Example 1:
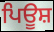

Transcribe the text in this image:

ਪਿਊਸ਼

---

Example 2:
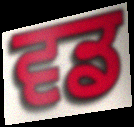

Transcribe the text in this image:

ਵਡ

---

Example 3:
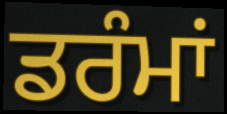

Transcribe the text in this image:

ਡਰੰਮਾਂ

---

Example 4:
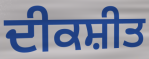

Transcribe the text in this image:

ਦੀਕਸ਼ੀਤ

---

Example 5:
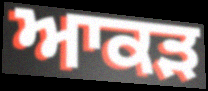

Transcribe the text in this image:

ਆਕੜ